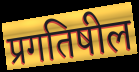
प्रगतिषील